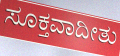
ಸೂಕ್ತವಾದೀತು